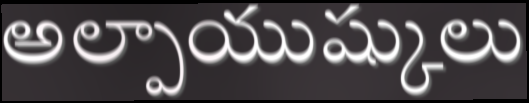
అల్పాయుష్కులు